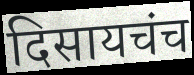
दिसायचंच